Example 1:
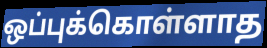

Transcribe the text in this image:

ஒப்புக்கொள்ளாத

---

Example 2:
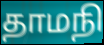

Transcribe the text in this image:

தாமநி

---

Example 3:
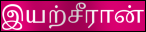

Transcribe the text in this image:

இயற்சீரான்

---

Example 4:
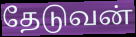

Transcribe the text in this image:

தேடுவன்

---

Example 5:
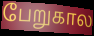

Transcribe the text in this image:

பேறுகால